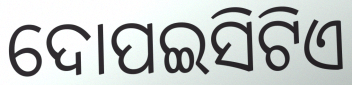
ଦୋପଇସିଟିଏ